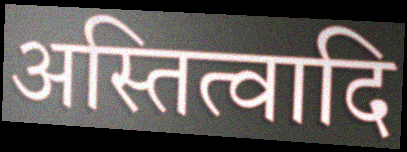
अस्तित्वादि